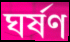
ঘর্ষণ